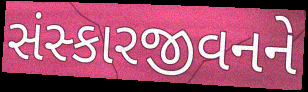
સંસ્કારજીવનને